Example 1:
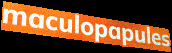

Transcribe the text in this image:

maculopapules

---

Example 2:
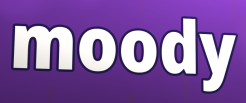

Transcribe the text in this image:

moody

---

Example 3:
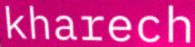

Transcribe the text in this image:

kharech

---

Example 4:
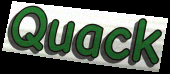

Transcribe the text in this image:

Quack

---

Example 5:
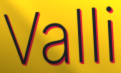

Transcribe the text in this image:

Valli